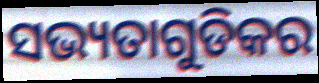
ସଭ୍ୟତାଗୁଡିକର